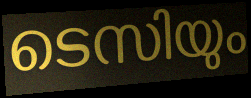
ടെസിയും